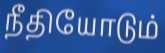
நீதியோடும்